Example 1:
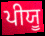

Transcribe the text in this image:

ਪੀਯੂ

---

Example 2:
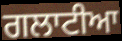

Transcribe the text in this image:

ਗਲਾਟੀਆ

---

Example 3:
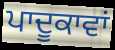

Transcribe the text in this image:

ਪਾਦੂਕਾਵਾਂ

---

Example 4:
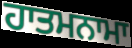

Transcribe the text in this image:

ਹਾਤਮਨਾਮਾ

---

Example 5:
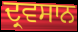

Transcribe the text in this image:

ਦ੍ਰਵਸਾਨ